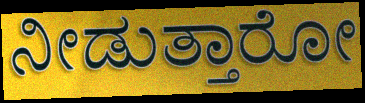
ನೀಡುತ್ತಾರೋ